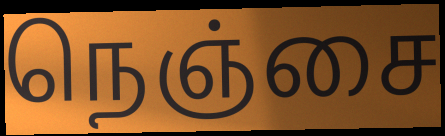
நெஞ்சை